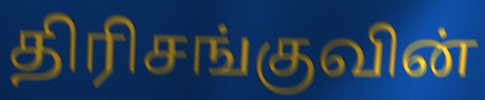
திரிசங்குவின்